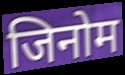
जिनोम